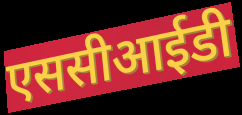
एससीआईडी